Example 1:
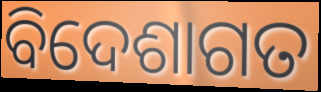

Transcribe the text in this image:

ବିଦେଶାଗତ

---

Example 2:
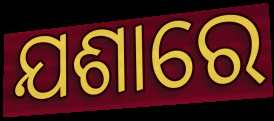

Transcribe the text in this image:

ଯଶାରେ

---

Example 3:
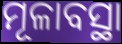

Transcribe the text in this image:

ମୂଳାବସ୍ଥା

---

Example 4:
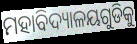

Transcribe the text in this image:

ମହାବିଦ୍ୟାଳୟଗୁଡିକୁ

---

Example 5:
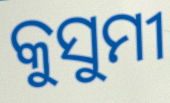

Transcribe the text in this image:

କୁସୁମୀ